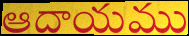
ఆదాయము